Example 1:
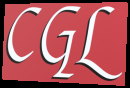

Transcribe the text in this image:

CGL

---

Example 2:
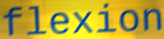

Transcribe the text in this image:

flexion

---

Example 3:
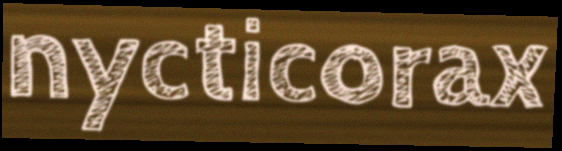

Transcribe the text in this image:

nycticorax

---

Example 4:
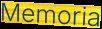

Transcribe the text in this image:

Memoria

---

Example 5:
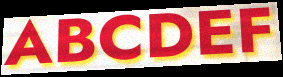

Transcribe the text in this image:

ABCDEF